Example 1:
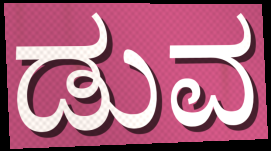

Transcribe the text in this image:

ಡುವ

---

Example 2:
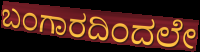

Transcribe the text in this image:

ಬಂಗಾರದಿಂದಲೇ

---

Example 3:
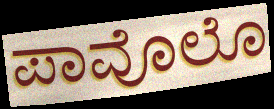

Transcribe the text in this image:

ಪಾವೊಲೊ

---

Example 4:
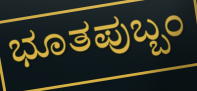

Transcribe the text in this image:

ಭೂತಪುಬ್ಬಂ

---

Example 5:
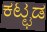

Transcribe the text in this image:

ಕಟ್ಟಡ